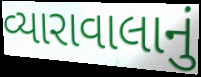
વ્યારાવાલાનું